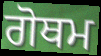
ਗੋਥਮ